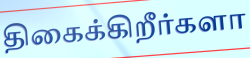
திகைக்கிறீர்களா